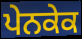
ਪੇਨਕੇਕ